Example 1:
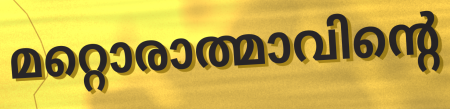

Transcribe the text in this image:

മറ്റൊരാത്മാവിന്റെ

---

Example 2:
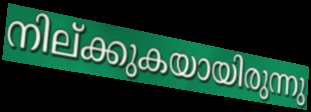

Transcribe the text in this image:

നില്ക്കുകയായിരുന്നു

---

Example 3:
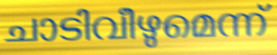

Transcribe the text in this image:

ചാടിവീഴുമെന്ന്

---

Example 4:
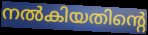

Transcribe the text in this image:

നൽകിയതിന്റെ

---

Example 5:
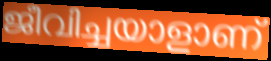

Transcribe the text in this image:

ജീവിച്ചയാളാണ്